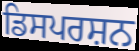
ਡਿਸਪਰਸ਼ਨ